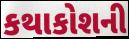
કથાકોશની